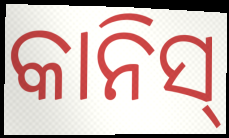
କାନିସ୍